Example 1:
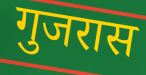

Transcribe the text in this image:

गुजरास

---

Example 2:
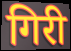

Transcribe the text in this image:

गिरी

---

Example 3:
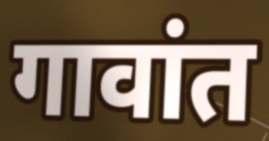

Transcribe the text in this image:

गावांत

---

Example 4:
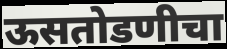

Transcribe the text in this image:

ऊसतोडणीचा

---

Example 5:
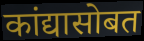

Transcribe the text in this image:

कांद्यासोबत